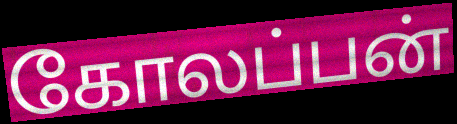
கோலப்பன்